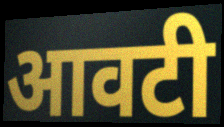
आवटी